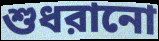
শুধরানো